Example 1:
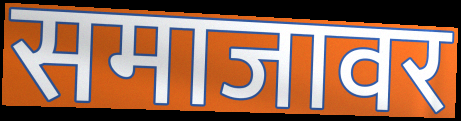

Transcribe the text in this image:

समाजावर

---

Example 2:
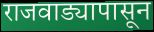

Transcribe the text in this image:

राजवाड्यापासून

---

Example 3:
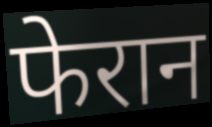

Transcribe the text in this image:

फेरान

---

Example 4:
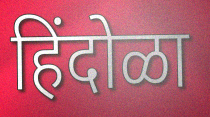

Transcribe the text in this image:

हिंदोळा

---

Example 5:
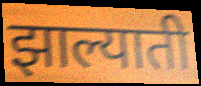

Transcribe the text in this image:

झाल्याती